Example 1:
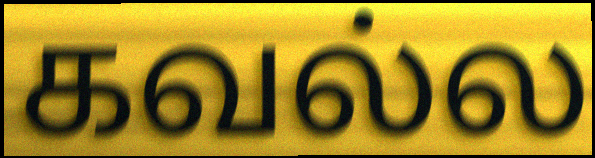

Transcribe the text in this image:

கவல்ல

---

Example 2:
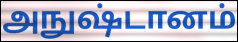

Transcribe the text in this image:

அநுஷ்டானம்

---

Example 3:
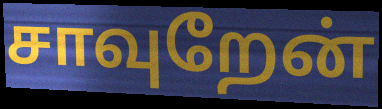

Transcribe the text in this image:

சாவுறேன்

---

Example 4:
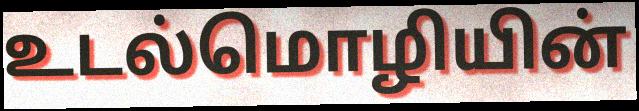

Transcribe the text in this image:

உடல்மொழியின்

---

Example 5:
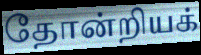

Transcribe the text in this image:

தோன்றியக்